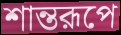
শান্তরূপে